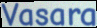
Vasara